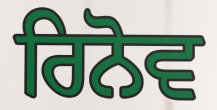
ਰਿਨੋਵ